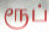
ரூப்